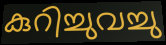
കുറിച്ചുവച്ചു